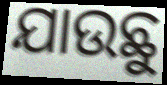
ଯାଉଛୁ